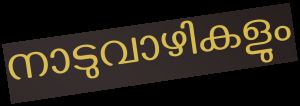
നാടുവാഴികളും